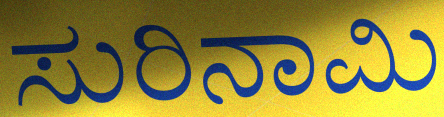
ಸುರಿನಾಮಿ